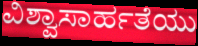
ವಿಶ್ವಾಸಾರ್ಹತೆಯು